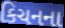
કિચનના